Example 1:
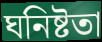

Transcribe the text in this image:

ঘনিষ্টতা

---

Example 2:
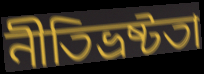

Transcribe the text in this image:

নীতিভ্রষ্টতা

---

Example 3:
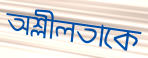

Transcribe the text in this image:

অশ্লীলতাকে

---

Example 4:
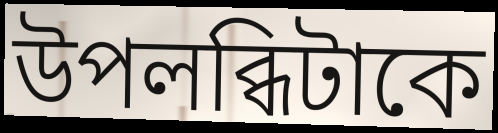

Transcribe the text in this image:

উপলব্ধিটাকে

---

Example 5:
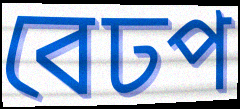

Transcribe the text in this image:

বেঢপ